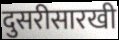
दुसरीसारखी